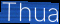
Thua